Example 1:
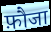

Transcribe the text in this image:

फ़ौजा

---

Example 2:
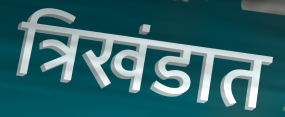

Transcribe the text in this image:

त्रिखंडात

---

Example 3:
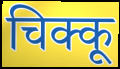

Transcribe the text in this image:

चिक्कू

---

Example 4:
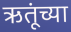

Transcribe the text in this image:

ऋतूंच्या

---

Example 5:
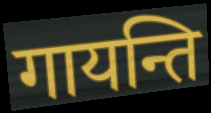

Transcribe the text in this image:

गायन्ति